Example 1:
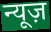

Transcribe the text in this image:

न्‍यूज़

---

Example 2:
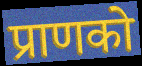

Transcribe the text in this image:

प्राणको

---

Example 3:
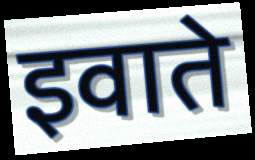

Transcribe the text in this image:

इवाते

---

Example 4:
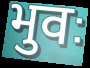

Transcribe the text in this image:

भुवः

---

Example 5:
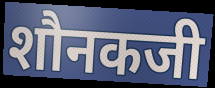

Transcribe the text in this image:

शौनकजी